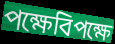
পক্ষেবিপক্ষে